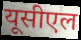
यूसीएल